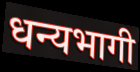
धन्यभागी